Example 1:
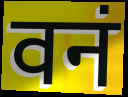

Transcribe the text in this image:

वनं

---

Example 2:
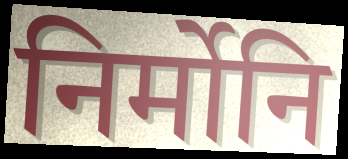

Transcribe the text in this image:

निर्मोनि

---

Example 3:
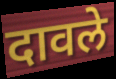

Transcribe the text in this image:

दावले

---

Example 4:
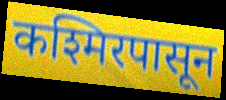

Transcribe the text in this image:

कश्मिरपासून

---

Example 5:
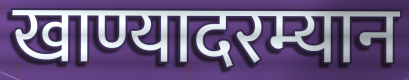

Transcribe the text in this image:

खाण्यादरम्यान